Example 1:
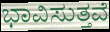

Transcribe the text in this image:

ಭಾವಿಸುತ್ತವೆ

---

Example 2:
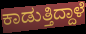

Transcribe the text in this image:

ಕಾಡುತ್ತಿದ್ದಾಳೆ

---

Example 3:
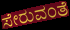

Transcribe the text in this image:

ಸೇರುವಂತೆ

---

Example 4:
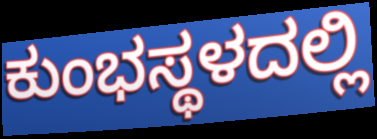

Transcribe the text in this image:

ಕುಂಭಸ್ಥಳದಲ್ಲಿ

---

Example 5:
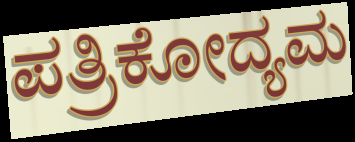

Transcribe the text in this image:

ಪತ್ರಿಕೋದ್ಯಮ